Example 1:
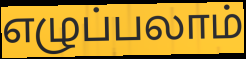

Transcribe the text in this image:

எழுப்பலாம்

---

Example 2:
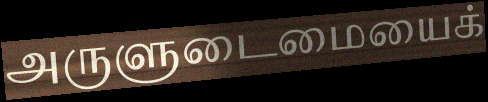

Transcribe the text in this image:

அருளுடைமையைக்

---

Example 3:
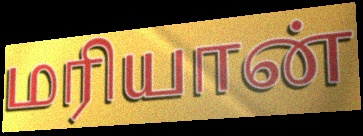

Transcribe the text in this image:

மரியான்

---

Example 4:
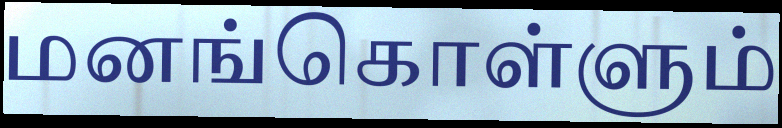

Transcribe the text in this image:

மனங்கொள்ளும்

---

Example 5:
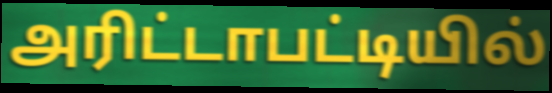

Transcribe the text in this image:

அரிட்டாபட்டியில்